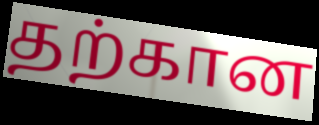
தற்கான